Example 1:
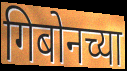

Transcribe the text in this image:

गिबोनच्या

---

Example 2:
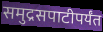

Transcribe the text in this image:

समुद्रसपाटीपर्यंत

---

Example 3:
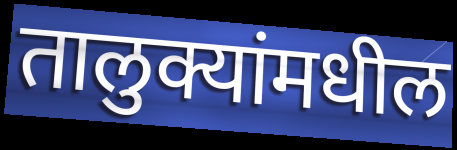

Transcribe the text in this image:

तालुक्यांमधील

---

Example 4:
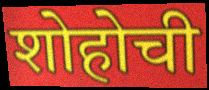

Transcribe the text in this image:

शोहोची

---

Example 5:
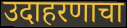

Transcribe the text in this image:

उदाहरणाचा